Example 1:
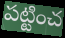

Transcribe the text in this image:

పట్టించ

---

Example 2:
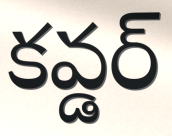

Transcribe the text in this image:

కవ్డర్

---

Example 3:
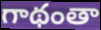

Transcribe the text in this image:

గాథంతా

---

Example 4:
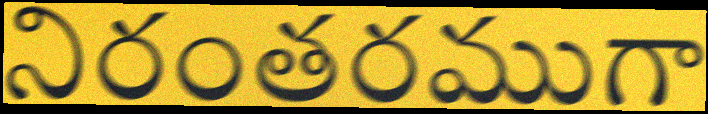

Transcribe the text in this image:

నిరంతరముగా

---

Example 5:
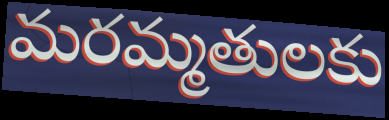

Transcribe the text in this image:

మరమ్మతులకు